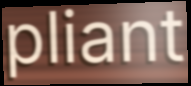
pliant